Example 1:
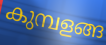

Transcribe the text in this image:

കുമ്പളങ്ങ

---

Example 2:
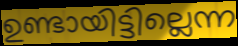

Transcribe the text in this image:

ഉണ്ടായിട്ടില്ലെന്ന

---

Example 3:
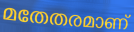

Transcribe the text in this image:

മതേതരമാണ്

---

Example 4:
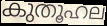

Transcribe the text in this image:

കുതൂഹല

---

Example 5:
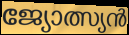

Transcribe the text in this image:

ജ്യോത്സ്യൻ